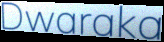
Dwaraka